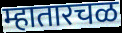
म्हातारचळ